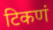
टिकणं